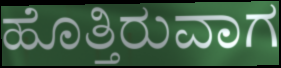
ಹೊತ್ತಿರುವಾಗ